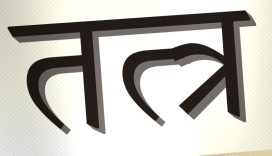
तत्त्र